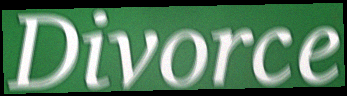
Divorce